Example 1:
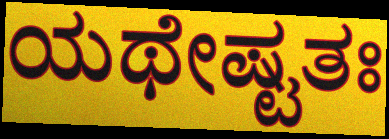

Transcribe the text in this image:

ಯಥೇಷ್ಟತಃ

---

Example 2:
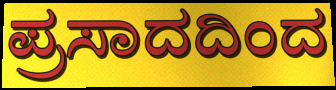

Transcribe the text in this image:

ಪ್ರಸಾದದಿಂದ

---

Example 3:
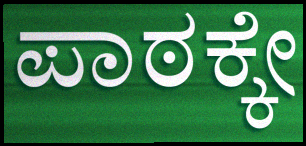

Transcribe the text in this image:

ಪಾಠಕ್ಕೇ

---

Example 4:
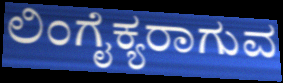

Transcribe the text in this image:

ಲಿಂಗೈಕ್ಯರಾಗುವ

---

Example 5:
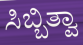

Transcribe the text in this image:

ಸಿಬ್ಬಿತ್ವಾ